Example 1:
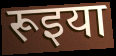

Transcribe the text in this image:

रूइया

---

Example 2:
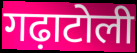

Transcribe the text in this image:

गढ़ाटोली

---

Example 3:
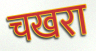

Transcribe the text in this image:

चखरा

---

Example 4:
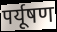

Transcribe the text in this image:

पर्यूषण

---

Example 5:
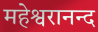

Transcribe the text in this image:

महेश्वरानन्द